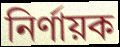
নির্ণায়ক